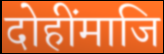
दोहींमाजि